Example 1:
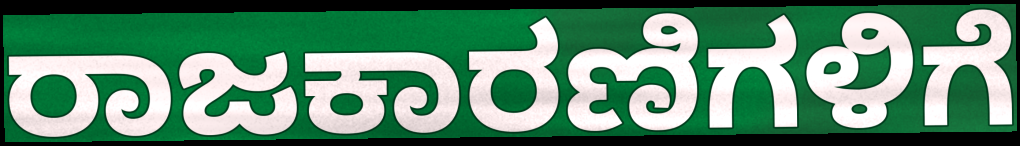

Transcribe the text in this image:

ರಾಜಕಾರಣಿಗಳಿಗೆ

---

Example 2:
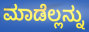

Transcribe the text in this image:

ಮಾಡೆಲ್ಲನ್ನು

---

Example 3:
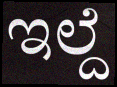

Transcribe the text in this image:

ಇಲ್ದೆ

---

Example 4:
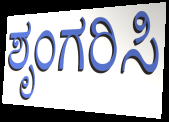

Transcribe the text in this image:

ಶೃಂಗರಿಸಿ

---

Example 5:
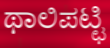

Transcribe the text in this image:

ಥಾಲಿಪಟ್ಟಿ